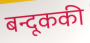
बन्दूककी